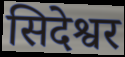
सिदेश्वर